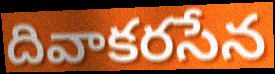
దివాకరసేన